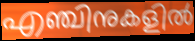
എഞ്ചിനുകളിൽ